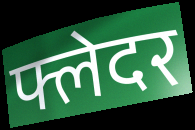
फ्लेदर